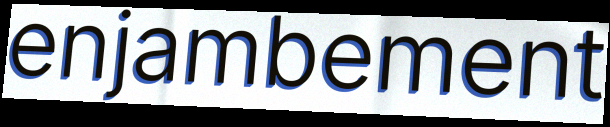
enjambement